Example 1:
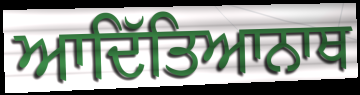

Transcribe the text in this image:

ਆਦਿੱਤਿਆਨਾਥ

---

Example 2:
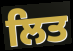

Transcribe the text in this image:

ਲਿਤ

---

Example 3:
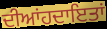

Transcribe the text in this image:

ਦੀਆਂਹਦਾਇਤਾਂ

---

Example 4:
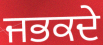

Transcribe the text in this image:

ਜਭਕਦੇ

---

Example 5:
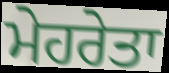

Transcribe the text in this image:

ਮੇਹਰੇਤਾ